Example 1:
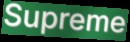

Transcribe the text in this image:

Supreme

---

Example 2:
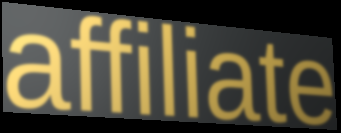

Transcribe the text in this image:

affiliate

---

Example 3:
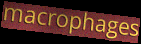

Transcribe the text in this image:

macrophages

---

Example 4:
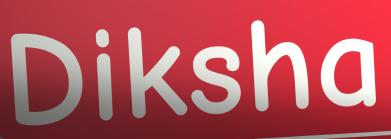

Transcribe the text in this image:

Diksha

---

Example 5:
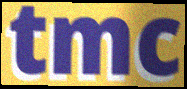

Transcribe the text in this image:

tmc